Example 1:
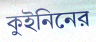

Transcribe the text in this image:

কুইনিনের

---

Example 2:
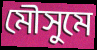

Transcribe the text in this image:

মৌসুমে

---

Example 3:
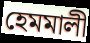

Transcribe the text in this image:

হেমমালী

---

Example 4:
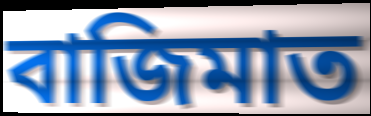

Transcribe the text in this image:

বাজিমাত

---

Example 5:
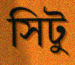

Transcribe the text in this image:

সিটু